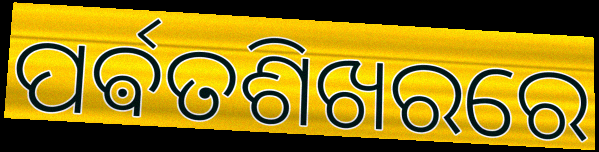
ପର୍ଵତଶିଖରରେ